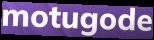
motugode